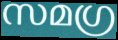
സമഗ്ര